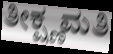
ತೀಕ್ಷ್ಣಮತಿ